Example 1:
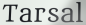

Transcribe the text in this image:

Tarsal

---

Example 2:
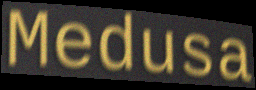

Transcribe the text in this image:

Medusa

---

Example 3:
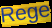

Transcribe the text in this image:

Rege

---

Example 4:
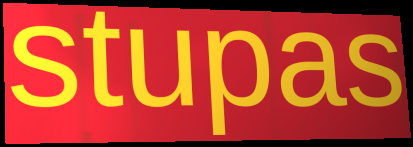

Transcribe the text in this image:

stupas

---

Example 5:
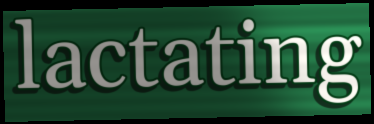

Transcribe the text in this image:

lactating